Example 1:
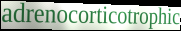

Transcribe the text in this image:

adrenocorticotrophic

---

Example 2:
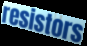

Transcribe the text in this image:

resistors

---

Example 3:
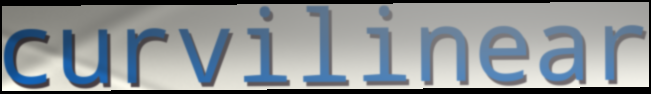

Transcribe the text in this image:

curvilinear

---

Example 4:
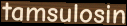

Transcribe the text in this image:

tamsulosin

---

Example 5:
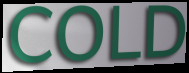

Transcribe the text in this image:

COLD